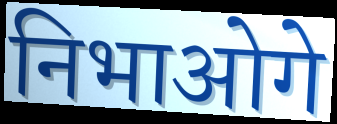
निभाओगे